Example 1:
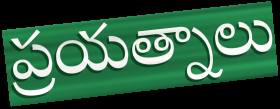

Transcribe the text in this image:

ప్రయత్నాలు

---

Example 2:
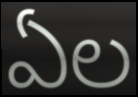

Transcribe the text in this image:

ఏల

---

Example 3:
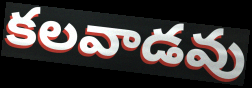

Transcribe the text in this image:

కలవాడవు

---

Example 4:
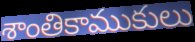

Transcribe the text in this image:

శాంతికాముకులు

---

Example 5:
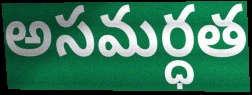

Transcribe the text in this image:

అసమర్ధత